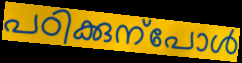
പഠിക്കുന്പോൾ